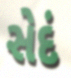
સેદં